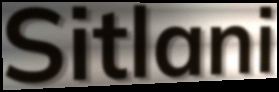
Sitlani